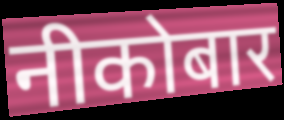
नीकोबार